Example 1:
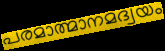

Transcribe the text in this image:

പരമാത്മാനമദ്വയം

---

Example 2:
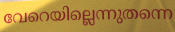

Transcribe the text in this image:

വേറെയില്ലെന്നുതന്നെ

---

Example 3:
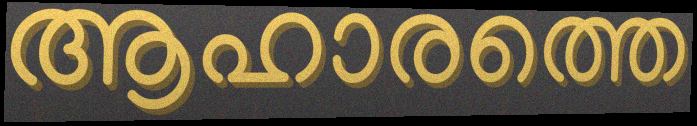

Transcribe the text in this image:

ആഹാരത്തെ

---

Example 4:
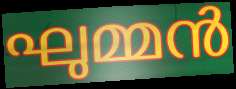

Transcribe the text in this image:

ഘുമ്മൻ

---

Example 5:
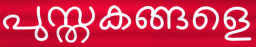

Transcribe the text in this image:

പുസ്തകങ്ങളെ